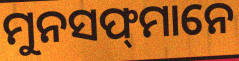
ମୁନସଫ୍‍ମାନେ